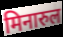
मिनारुल